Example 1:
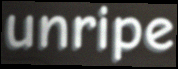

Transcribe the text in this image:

unripe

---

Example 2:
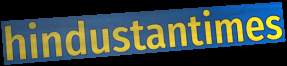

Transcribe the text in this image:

hindustantimes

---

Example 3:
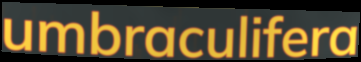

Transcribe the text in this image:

umbraculifera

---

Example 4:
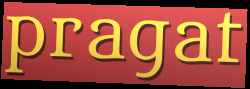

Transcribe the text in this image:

pragat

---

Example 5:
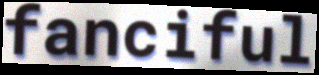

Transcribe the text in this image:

fanciful